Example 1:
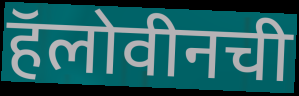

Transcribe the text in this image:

हॅलोवीनची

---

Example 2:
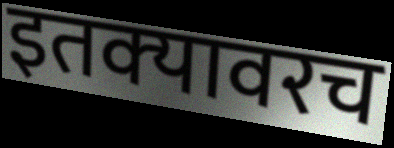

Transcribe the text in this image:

इतक्यावरच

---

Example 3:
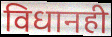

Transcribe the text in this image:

विधानही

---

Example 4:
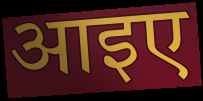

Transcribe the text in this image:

आइए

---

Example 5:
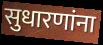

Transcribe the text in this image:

सुधारणांना